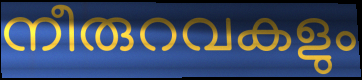
നീരുറവകളും